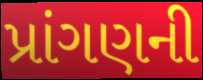
પ્રાંગણની